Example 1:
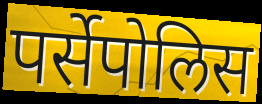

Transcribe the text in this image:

पर्सेपोलिस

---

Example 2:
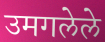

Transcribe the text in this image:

उमगलेले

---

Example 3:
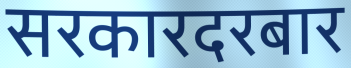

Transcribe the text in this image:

सरकारदरबार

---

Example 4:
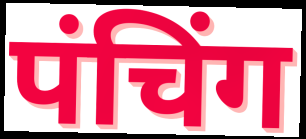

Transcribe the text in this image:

पंचिंग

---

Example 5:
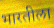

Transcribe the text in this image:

भारतीला